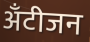
अँटीजन